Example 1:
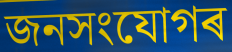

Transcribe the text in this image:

জনসংযোগৰ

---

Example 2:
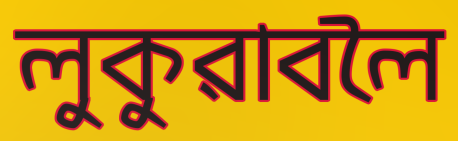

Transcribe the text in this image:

লুকুৱাবলৈ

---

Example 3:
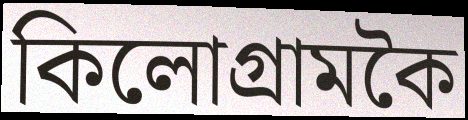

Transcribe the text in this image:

কিলোগ্ৰামকৈ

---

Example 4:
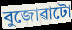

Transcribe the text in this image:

বুজোৱাটো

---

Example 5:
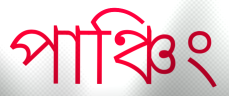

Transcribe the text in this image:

পাঞ্চিং